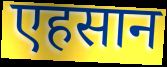
एहसान